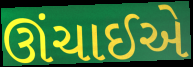
ઊંચાઈએ